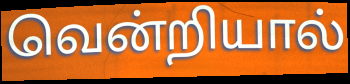
வென்றியால்